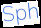
Sph